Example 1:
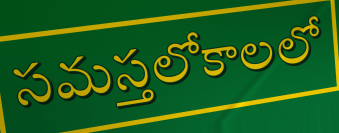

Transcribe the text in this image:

సమస్తలోకాలలో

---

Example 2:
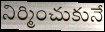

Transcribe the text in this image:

నిర్మించుకునే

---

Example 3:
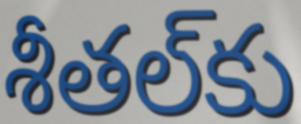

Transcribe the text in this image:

శీతల్‌కు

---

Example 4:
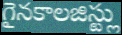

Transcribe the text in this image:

గైనకాలజిస్ట్లు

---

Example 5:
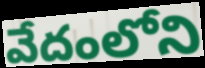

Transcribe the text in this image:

వేదంలోని